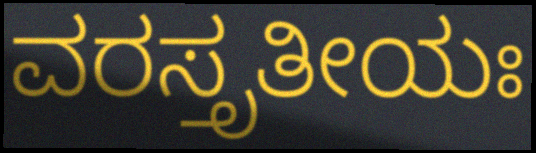
ವರಸ್ತೃತೀಯಃ